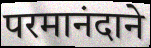
परमानंदाने